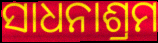
ସାଧନାଶ୍ରମ